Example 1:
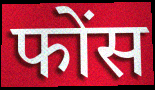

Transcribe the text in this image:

फोंस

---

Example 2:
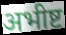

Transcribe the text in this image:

अभीष्ट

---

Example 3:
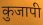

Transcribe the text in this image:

कुजापी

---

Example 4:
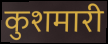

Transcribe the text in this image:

कुशमारी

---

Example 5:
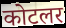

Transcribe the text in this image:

कोटलर